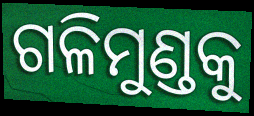
ଗଳିମୁଣ୍ଡକୁ